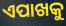
ଏପାଖକୁ